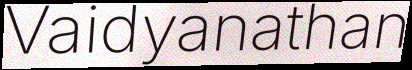
Vaidyanathan